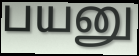
பயனு